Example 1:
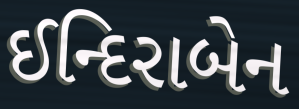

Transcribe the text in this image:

ઈન્દિરાબેન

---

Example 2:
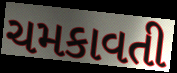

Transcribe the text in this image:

ચમકાવતી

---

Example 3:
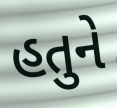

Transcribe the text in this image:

હતુને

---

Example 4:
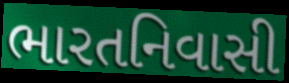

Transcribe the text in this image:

ભારતનિવાસી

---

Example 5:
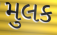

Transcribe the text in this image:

મુલક